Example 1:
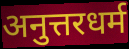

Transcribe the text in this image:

अनुत्तरधर्म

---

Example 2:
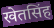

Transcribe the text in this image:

खेतसिंह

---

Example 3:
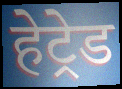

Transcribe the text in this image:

हेट्रेड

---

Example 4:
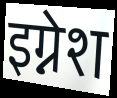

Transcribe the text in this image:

इग्नेश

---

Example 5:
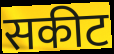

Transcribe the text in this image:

सकीट